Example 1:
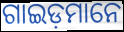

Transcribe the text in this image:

ଗାଇଡ଼ମାନେ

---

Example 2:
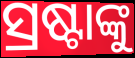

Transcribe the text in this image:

ସ୍ରଷ୍ଟାଙ୍କୁ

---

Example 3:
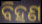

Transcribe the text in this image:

ବିହଣ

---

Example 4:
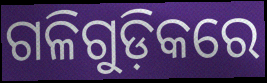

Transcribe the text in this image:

ଗଳିଗୁଡ଼ିକରେ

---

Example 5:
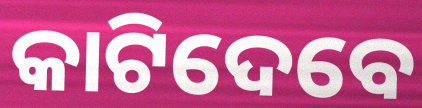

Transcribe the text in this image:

କାଟିଦେବେ